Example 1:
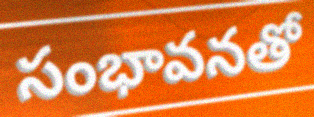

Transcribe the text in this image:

సంభావనతో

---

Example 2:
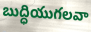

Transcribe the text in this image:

బుద్ధియుగలవా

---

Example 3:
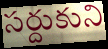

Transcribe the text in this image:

సర్దుకుని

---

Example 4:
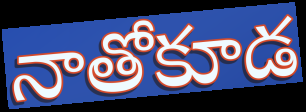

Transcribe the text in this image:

నాతోకూడ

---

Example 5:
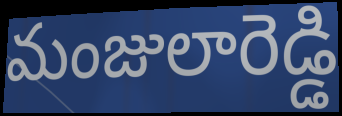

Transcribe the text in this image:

మంజులారెడ్డి